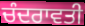
ਚੰਦਰਾਵਤੀ